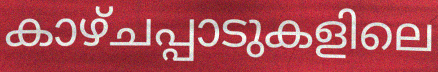
കാഴ്ചപ്പാടുകളിലെ